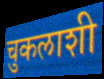
चुकलाशी